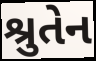
શ્રુતેન